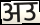
अउ